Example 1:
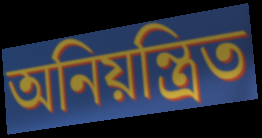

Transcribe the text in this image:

অনিয়ন্ত্ৰিত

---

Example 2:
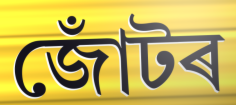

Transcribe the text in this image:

জোঁটৰ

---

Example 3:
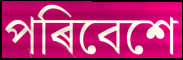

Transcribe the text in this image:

পৰিবেশে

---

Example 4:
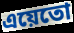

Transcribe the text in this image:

এয়েতো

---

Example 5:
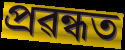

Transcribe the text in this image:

প্ৰৱন্ধত